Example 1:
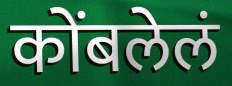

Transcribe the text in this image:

कोंबलेलं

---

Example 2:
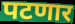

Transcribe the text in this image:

पटणार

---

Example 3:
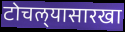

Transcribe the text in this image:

टोचल्यासारखा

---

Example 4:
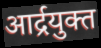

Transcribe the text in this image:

आर्द्रयुक्त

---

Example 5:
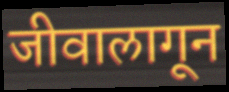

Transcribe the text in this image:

जीवालागून